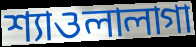
শ্যাওলালাগা